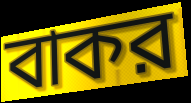
বাকর